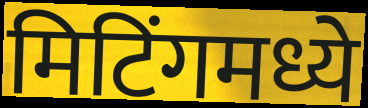
मिटिंगमध्ये